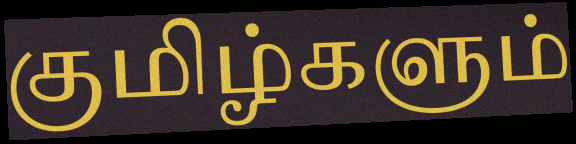
குமிழ்களும்